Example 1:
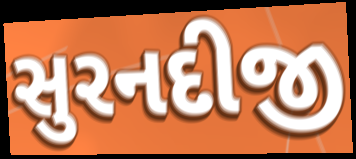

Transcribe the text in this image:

સુરનદીજી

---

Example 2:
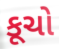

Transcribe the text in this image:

કૂચો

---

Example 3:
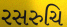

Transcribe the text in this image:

રસરુચિ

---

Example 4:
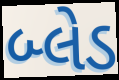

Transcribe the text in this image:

બ્લેડ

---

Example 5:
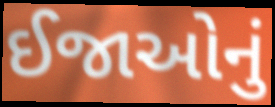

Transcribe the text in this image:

ઈજાઓનું